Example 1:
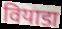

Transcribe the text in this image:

वियाडा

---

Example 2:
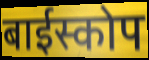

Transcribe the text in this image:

बाईस्कोप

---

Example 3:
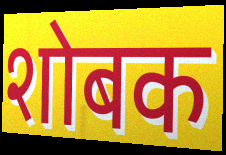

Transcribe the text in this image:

शोबक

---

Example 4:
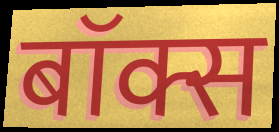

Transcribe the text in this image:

बॉक्स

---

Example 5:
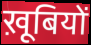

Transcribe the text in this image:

ख़ूबियों